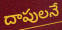
దాపులనే